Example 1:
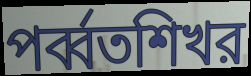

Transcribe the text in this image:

পর্ব্বতশিখর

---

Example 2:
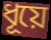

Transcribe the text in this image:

ধূয়ে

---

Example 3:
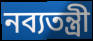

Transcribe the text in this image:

নব্যতন্ত্রী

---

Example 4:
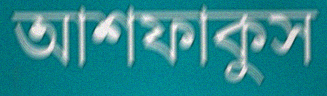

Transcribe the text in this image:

আশফাকুস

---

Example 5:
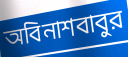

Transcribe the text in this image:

অবিনাশবাবুর